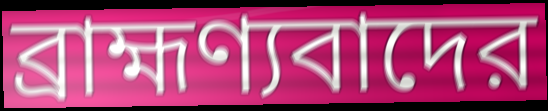
ব্রাহ্মণ্যবাদের